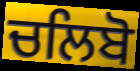
ਚਲਿਬੋ